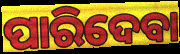
ପାରିଦେବା